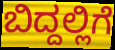
ಬಿದ್ದಲ್ಲಿಗೆ